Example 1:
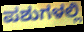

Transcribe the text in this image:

ಪಶುಗಳಲ್ಲಿ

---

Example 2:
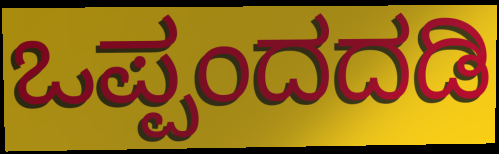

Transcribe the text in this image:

ಒಪ್ಪಂದದಡಿ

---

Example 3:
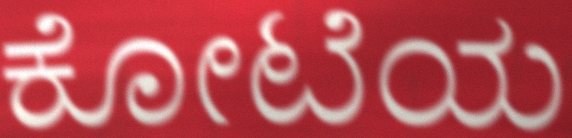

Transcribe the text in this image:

ಕೋಟೆಯ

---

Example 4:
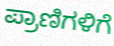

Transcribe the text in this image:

ಪ್ರಾಣಿಗಳಿಗೆ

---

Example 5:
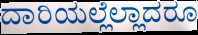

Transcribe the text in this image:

ದಾರಿಯಲ್ಲೆಲ್ಲಾದರೂ